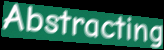
Abstracting